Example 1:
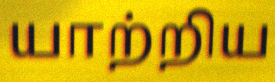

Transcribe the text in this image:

யாற்றிய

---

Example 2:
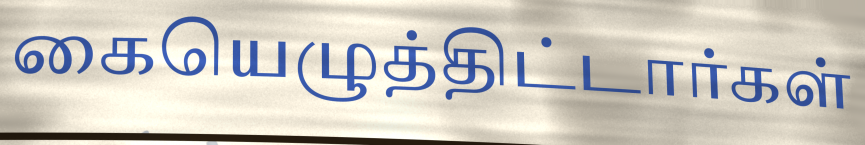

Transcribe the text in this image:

கையெழுத்திட்டார்கள்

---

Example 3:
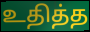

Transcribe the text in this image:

உதித்த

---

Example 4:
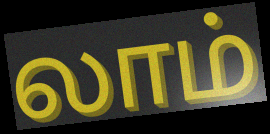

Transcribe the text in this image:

லாம்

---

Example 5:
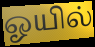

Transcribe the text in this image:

ஓயில்